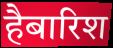
हैबारिश